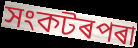
সংকটৰপৰা